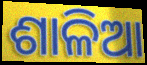
ଶାଳିଆ